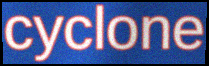
cyclone